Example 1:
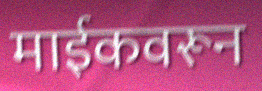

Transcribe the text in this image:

माईकवरून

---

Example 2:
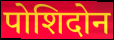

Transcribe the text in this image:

पोशिदोन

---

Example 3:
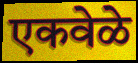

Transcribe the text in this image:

एकवेळे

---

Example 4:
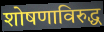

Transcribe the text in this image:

शोषणाविरुद्ध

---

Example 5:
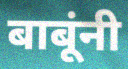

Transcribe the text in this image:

बाबूंनी